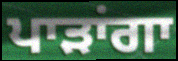
ਪਾੜਾਂਗਾ